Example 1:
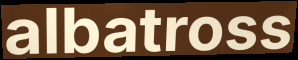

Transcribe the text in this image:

albatross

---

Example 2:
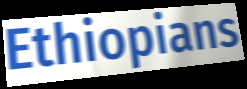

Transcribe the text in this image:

Ethiopians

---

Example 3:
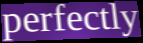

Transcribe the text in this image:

perfectly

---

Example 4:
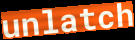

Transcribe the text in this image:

unlatch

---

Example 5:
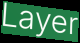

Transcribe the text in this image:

Layer